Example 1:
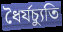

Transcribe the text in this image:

ধৈর্যচ্যুতি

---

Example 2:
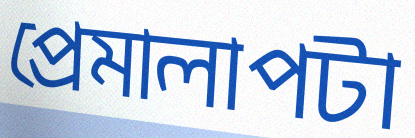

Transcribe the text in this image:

প্রেমালাপটা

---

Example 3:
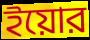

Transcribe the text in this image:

ইয়োর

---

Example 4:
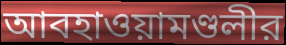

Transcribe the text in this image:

আবহাওয়ামণ্ডলীর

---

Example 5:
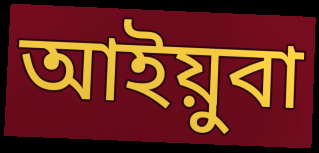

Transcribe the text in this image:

আইয়ুবা